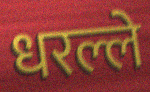
धरल्ले